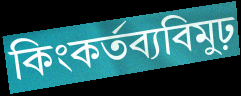
কিংকর্তব্যবিমুঢ়